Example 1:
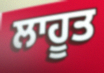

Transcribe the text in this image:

ਲਾਹੂਤ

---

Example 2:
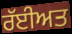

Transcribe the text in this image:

ਰੱਈਅਤ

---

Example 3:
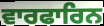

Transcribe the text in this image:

ਵਾਰਫਾਰਿਨ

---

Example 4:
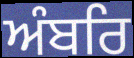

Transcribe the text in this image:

ਅੰਬਰਿ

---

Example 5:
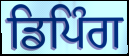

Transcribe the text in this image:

ਡਿਪਿੰਗ